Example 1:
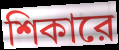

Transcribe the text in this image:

শিকারে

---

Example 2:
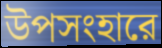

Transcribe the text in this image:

উপসংহারে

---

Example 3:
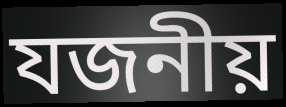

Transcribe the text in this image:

যজনীয়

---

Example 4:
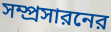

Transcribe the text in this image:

সম্প্রসারনের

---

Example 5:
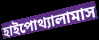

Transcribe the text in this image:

হাইপোথ্যালামাস